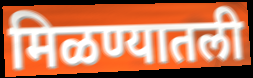
मिळण्यातली